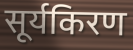
सूर्यकिरण